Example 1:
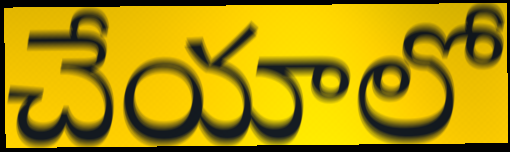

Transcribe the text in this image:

చేయాలో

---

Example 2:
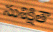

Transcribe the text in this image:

సుశిక్షితౌ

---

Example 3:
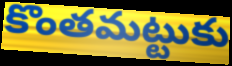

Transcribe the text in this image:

కొంతమట్టుకు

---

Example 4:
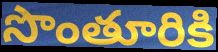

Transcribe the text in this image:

సొంతూరికి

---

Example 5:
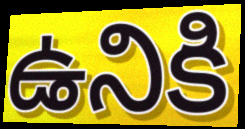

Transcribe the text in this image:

ఉనికి